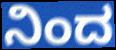
ನಿಂದ